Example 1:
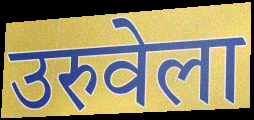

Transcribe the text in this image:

उरुवेला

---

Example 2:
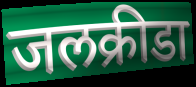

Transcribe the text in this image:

जलक्रीडा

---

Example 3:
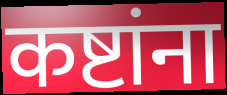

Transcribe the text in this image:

कष्टांना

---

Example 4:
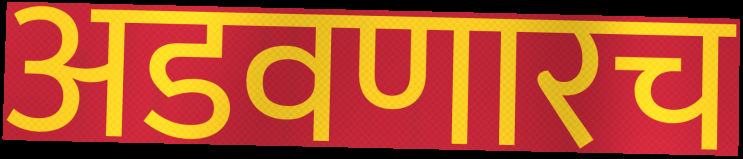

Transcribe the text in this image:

अडवणारच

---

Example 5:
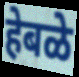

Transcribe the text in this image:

हेबळे